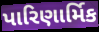
પારિણાર્મિક